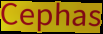
Cephas